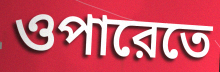
ওপারেতে